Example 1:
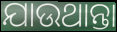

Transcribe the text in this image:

ଯାଉଥାନ୍ତା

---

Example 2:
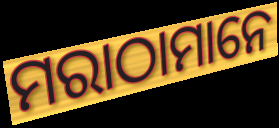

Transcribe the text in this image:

ମରାଠାମାନେ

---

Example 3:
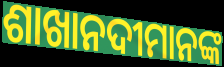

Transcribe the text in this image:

ଶାଖାନଦୀମାନଙ୍କ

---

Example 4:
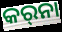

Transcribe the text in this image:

କର୍‌ନା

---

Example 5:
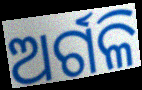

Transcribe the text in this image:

ଅର୍ଗଳି